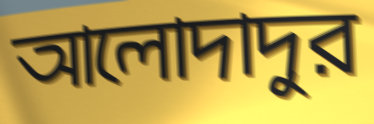
আলোদাদুর